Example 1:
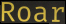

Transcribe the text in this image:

Roar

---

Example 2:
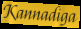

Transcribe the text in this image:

Kannadiga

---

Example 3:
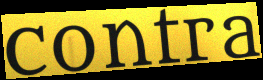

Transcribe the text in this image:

contra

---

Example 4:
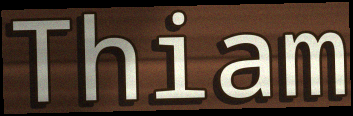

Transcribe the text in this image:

Thiam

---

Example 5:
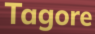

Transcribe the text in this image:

Tagore